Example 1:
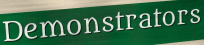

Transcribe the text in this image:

Demonstrators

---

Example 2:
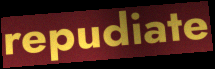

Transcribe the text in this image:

repudiate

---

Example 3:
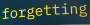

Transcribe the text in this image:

forgetting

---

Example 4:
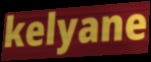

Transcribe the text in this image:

kelyane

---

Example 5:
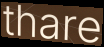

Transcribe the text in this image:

thare